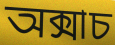
অক্সাচ